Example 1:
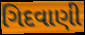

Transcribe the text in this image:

ગિદવાણી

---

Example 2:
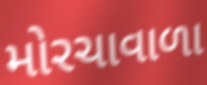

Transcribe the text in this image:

મોરચાવાળા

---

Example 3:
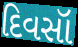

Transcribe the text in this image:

દિવસૉ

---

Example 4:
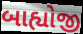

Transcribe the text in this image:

બાહ્યોજી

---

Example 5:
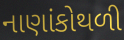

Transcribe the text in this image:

નાણાંકોથળી